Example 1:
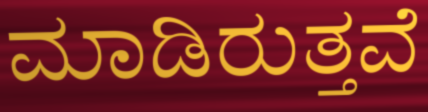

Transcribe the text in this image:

ಮಾಡಿರುತ್ತವೆ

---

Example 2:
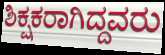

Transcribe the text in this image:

ಶಿಕ್ಷಕರಾಗಿದ್ದವರು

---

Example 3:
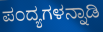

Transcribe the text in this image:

ಪಂದ್ಯಗಳನ್ನಾಡಿ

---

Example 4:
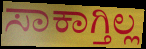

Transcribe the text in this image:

ಸಾಕಾಗ್ತಿಲ್ಲ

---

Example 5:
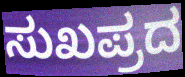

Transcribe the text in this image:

ಸುಖಪ್ರದ